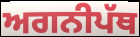
ਅਗਨੀਪੱਥ